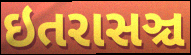
ઇતરાસઞ્ચ